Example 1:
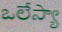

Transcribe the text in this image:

ఒలేస్యా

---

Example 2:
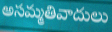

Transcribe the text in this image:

అసమ్మతివాదులు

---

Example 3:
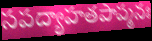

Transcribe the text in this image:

సపద్యాహతపాప్మనః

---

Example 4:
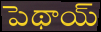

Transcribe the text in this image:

పెథాయ్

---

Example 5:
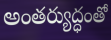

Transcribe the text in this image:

అంతర్యుద్ధంతో